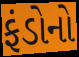
ફંડોનો